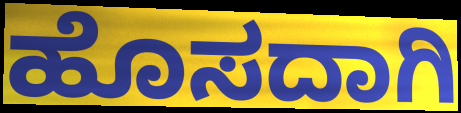
ಹೊಸದಾಗಿ